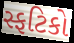
સ્ફટિકો